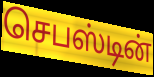
செபஸ்டின்